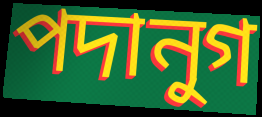
পদানুগ